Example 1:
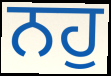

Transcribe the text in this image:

ਨਹੁ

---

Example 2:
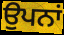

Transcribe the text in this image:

ਉਪਨਾਂ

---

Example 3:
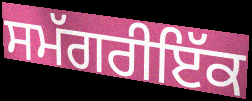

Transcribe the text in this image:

ਸਮੱਗਰੀਇੱਕ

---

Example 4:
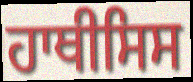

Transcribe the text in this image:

ਹਾਥੀਸਿਸ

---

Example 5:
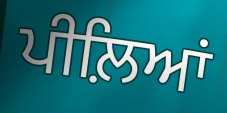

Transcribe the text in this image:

ਪੀਲ਼ਿਆਂ